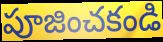
పూజించకండి